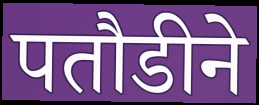
पतौडीने